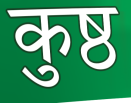
कुष्ठ